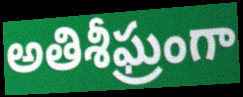
అతిశీఘ్రంగా